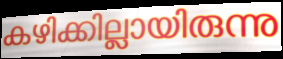
കഴിക്കില്ലായിരുന്നു